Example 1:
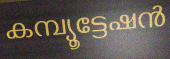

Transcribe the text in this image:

കമ്പ്യൂട്ടേഷൻ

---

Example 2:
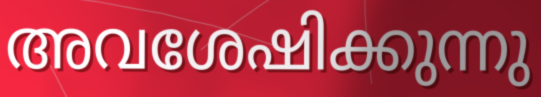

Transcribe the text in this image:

അവശേഷിക്കുന്നു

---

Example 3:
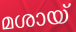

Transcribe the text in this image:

മശായ്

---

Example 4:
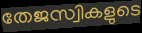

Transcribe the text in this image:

തേജസ്വികളുടെ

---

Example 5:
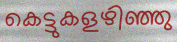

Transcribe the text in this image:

കെട്ടുകളഴിഞ്ഞു